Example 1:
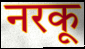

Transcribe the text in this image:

नरकू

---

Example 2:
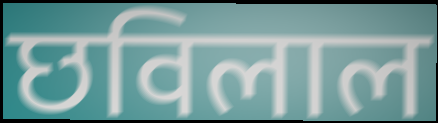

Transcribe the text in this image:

छविलाल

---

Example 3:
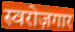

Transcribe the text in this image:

स्वरोज़गार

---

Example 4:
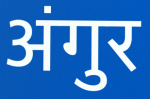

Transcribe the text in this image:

अंगुर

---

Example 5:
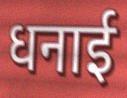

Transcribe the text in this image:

धनाई